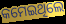
କମେଇଥିଲେ